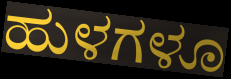
ಹುಳಗಳೂ